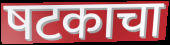
षटकाचा